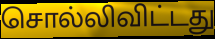
சொல்லிவிட்டது